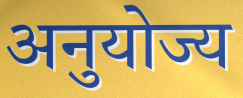
अनुयोज्य